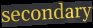
secondary